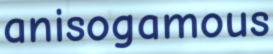
anisogamous